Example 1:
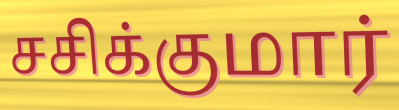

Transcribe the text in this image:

சசிக்குமார்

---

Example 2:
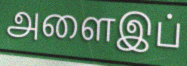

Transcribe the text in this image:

அளைஇப்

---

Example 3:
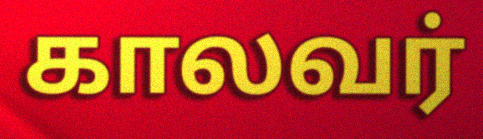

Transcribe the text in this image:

காலவர்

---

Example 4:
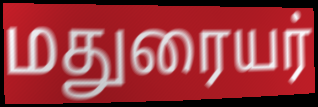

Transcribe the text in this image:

மதுரையர்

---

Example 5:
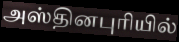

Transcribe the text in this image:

அஸ்தினபுரியில்